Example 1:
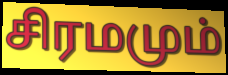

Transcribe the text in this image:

சிரமமும்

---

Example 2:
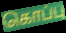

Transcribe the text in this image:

கொப்பு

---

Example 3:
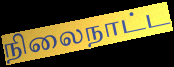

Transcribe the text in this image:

நிலைநாட்ட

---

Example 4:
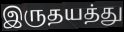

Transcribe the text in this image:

இருதயத்து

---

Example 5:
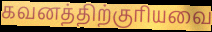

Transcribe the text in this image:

கவனத்திற்குரியவை